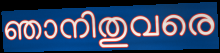
ഞാനിതുവരെ